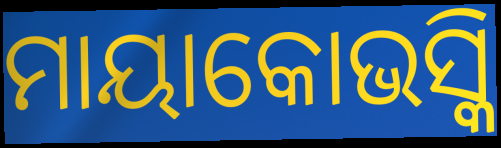
ମାୟାକୋଭସ୍କି